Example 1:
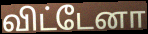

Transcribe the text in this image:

விட்டேனா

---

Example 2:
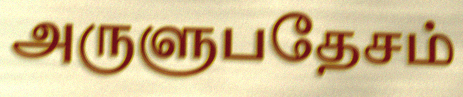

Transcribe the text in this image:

அருளுபதேசம்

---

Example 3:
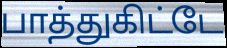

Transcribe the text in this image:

பாத்துகிட்டே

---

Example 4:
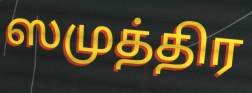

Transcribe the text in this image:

ஸமுத்திர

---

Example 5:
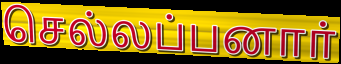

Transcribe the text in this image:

செல்லப்பனார்